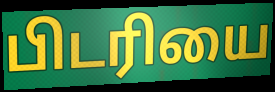
பிடரியை